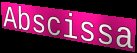
Abscissa